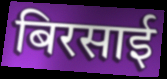
बिरसाई